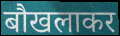
बौखलाकर